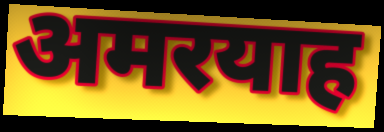
अमरयाह